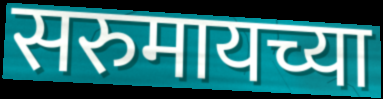
सरुमायच्या